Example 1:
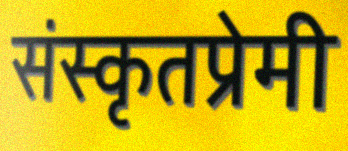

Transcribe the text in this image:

संस्कृतप्रेमी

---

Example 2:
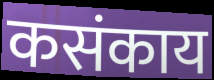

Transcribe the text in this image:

कसंकाय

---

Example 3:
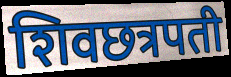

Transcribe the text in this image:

शिवछत्रपती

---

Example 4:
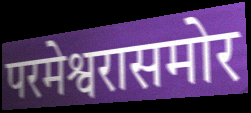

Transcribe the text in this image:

परमेश्वरासमोर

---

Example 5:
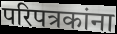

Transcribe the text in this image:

परिपत्रकांना